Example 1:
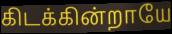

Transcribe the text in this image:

கிடக்கின்றாயே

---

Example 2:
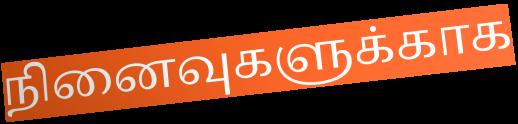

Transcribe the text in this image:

நினைவுகளுக்காக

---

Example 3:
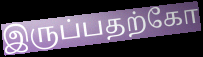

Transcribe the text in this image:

இருப்பதற்கோ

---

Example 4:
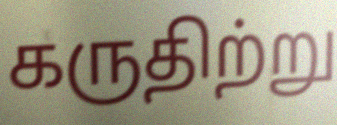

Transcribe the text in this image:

கருதிற்று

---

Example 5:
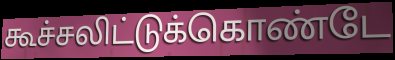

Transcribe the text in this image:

கூச்சலிட்டுக்கொண்டே